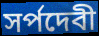
সর্পদেবী